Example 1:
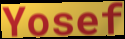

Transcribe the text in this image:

Yosef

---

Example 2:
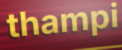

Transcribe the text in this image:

thampi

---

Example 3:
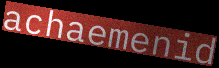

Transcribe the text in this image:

achaemenid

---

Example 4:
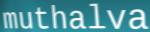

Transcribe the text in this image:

muthalva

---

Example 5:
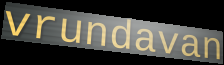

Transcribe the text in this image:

vrundavan